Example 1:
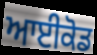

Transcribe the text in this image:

ਆਈਕੋਡ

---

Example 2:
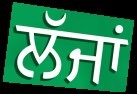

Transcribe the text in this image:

ਲੱਜਾਂ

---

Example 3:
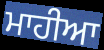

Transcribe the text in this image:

ਮਾਹੀਆ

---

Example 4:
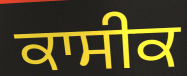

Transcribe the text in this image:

ਕਾਸੀਕ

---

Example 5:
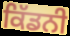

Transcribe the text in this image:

ਕਿੱਡਨੀ